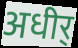
अधीर्